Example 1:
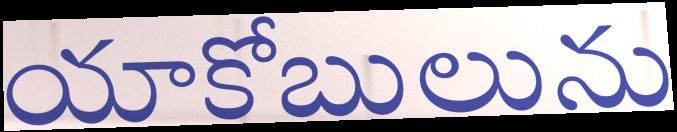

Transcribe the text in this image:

యాకోబులును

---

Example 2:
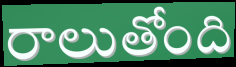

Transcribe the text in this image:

రాలుతోంది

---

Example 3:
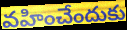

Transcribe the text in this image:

వహించేందుకు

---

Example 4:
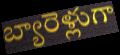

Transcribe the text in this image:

బ్యారెళ్లుగా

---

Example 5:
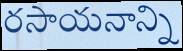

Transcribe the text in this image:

రసాయనాన్ని